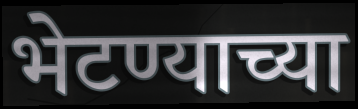
भेटण्याच्या